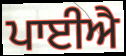
ਪਾਈਐ